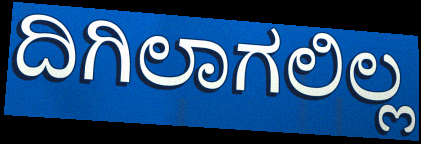
ದಿಗಿಲಾಗಲಿಲ್ಲ